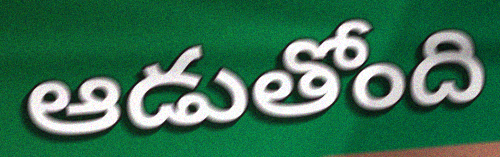
ఆడుతోంది